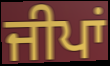
ਜੀਪਾਂ